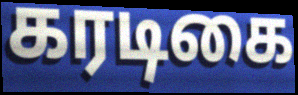
கரடிகை